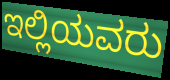
ಇಲ್ಲಿಯವರು